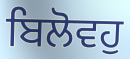
ਬਿਲੋਵਹੁ